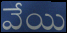
వేయి